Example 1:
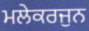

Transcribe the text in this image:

ਮਲੇਕਰਜੁਨ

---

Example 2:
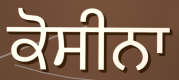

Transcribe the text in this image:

ਕੋਸੀਨਾ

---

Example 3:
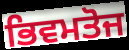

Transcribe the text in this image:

ਭਿਵਮਤੋਜ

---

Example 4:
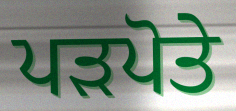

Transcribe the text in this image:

ਪੜਪੋਤੇ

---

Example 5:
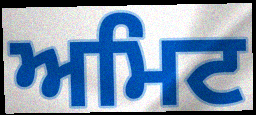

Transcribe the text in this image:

ਅਮਿਟ